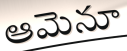
ఆమెనూ